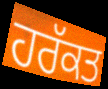
ਹਰੱਕਤ